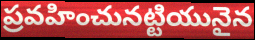
ప్రవహించునట్టియునైన